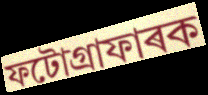
ফটোগ্ৰাফাৰক